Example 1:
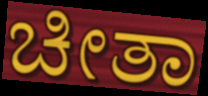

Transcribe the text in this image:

ಚೀತಾ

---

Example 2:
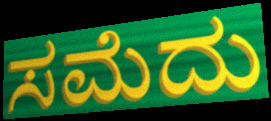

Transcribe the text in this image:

ಸಮೆದು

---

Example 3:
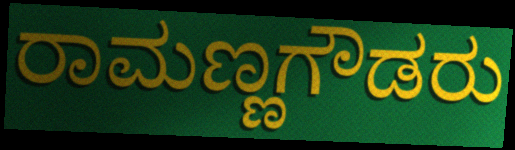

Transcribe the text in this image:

ರಾಮಣ್ಣಗೌಡರು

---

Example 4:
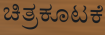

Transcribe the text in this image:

ಚಿತ್ರಕೂಟಕೆ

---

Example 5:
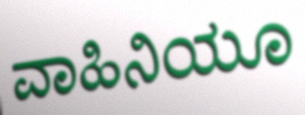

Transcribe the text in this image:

ವಾಹಿನಿಯೂ